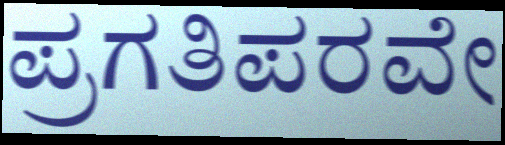
ಪ್ರಗತಿಪರವೇ